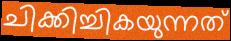
ചിക്കിച്ചികയുന്നത്